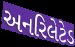
અનરિલેટેડ